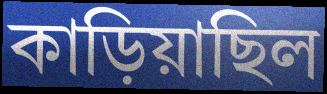
কাড়িয়াছিল